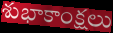
శుభాకాంక్షలు